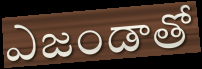
ఎజండాతో